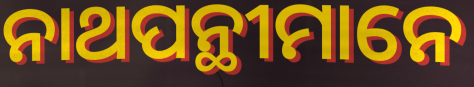
ନାଥପନ୍ଥୀମାନେ